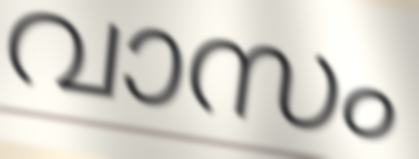
വാസം